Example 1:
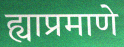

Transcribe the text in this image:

ह्याप्रमाणे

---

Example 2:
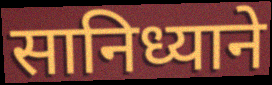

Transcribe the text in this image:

सानिध्याने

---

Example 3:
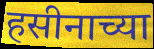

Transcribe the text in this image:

हसीनाच्या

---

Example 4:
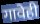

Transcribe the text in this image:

गावेही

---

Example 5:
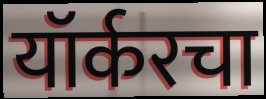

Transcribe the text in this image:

यॉर्करचा